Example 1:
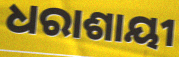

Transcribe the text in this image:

ଧରାଶାୟୀ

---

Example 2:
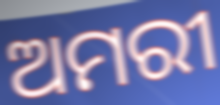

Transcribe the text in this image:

ଅମରୀ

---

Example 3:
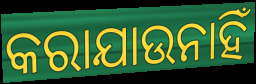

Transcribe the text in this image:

କରାଯାଉନାହିଁ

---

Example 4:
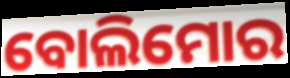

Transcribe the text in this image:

ବୋଲିମୋର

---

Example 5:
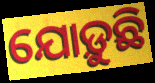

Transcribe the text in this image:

ଯୋଡ଼ୁଛି